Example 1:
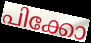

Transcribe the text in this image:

പിക്കോ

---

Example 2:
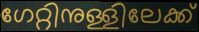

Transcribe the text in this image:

ഗേറ്റിനുള്ളിലേക്ക്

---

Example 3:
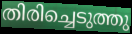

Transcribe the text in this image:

തിരിച്ചെടുത്തു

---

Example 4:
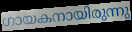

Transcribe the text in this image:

ഗായകനായിരുന്നു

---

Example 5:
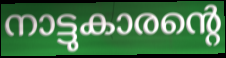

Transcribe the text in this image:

നാട്ടുകാരന്റെ